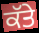
ਕੱਤੇ